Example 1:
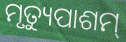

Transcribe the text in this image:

ମୃତ୍ୟୁପାଶମ୍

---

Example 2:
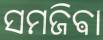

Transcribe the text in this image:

ସମଜିଵା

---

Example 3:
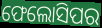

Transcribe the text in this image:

ଫେଲୋସିପର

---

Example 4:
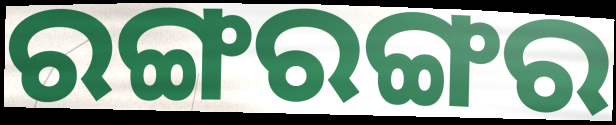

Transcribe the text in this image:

ରଙ୍ଗରଙ୍ଗର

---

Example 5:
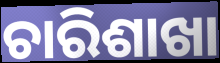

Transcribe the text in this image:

ଚାରିଶାଖା